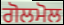
ਗੋਲਮੋਲ